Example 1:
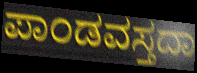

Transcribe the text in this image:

ಪಾಂಡವಸ್ತದಾ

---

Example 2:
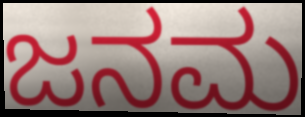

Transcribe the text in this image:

ಜನಮ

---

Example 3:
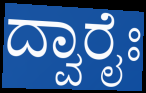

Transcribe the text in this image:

ದ್ವಾರೈಃ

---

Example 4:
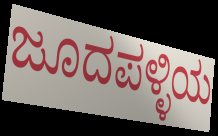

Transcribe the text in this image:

ಜೂದಪಳ್ಳಿಯ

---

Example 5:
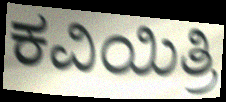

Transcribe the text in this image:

ಕವಿಯಿತ್ರಿ